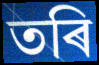
তৰি